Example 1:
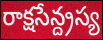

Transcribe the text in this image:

రాక్షసేన్ద్రస్య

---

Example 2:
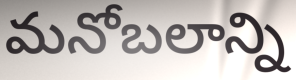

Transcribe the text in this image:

మనోబలాన్ని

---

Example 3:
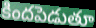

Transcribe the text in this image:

కిందపెడుతూ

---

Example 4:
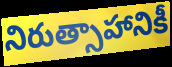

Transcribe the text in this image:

నిరుత్సాహానికీ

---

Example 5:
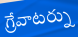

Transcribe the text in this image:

గ్రేవాటర్ను